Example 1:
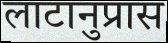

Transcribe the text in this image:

लाटानुप्रास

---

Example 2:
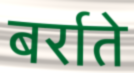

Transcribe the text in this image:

बर्राते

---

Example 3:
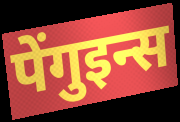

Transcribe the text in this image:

पेंगुइन्स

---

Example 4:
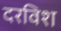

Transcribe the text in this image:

दरविश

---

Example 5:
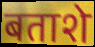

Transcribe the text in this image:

बताशे